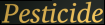
Pesticide